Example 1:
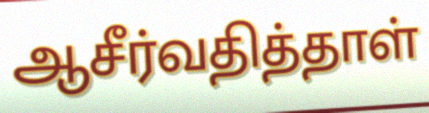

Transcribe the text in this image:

ஆசீர்வதித்தாள்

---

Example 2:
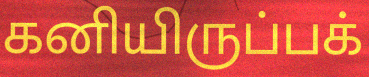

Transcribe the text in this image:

கனியிருப்பக்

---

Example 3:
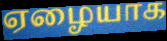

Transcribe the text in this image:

ஏழையாக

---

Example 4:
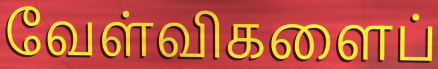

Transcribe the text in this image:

வேள்விகளைப்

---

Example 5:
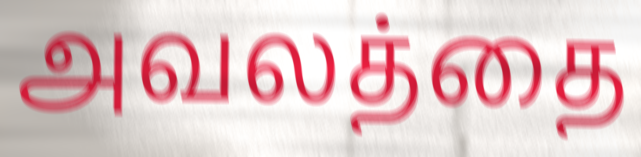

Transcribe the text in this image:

அவலத்தை